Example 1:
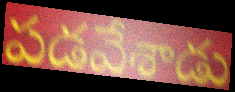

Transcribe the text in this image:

పడవేశాడు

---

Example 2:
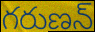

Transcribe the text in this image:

గరుణన్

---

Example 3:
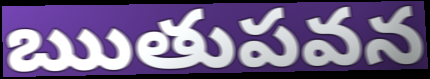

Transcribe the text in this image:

ఋతుపవన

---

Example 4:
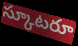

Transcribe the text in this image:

స్కూటరూ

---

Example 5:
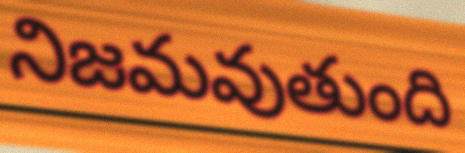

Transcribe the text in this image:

నిజమవుతుంది